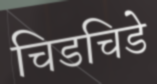
चिडचिडे